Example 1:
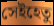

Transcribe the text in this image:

সেইহেতু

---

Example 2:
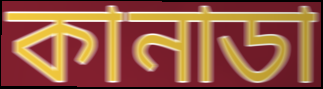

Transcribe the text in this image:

কানাডা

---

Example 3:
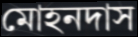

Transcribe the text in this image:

মোহনদাস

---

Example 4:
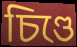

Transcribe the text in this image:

চিণ্ডে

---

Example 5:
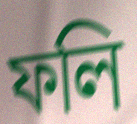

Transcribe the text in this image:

ফলি